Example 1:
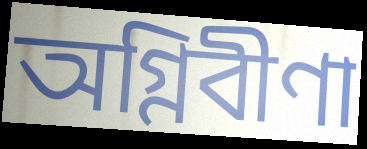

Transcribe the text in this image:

অগ্নিবীণা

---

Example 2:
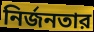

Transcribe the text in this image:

নির্জনতার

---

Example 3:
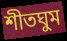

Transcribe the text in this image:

শীতঘুম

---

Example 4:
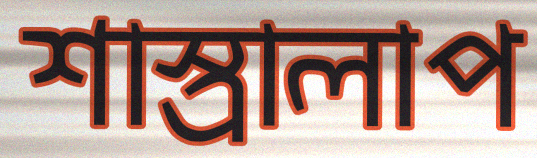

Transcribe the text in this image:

শাস্ত্রালাপ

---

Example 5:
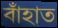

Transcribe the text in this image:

বাঁহাত